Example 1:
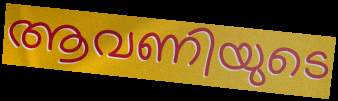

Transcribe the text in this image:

ആവണിയുടെ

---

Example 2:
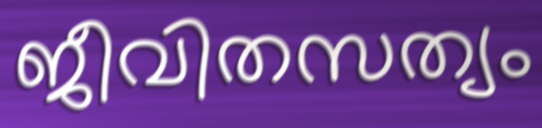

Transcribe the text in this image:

ജീവിതസത്യം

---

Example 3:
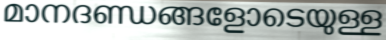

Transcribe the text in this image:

മാനദണ്ഡങ്ങളോടെയുള്ള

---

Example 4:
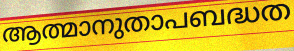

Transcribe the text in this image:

ആത്മാനുതാപബദ്ധത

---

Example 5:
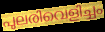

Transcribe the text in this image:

പുലരിവെളിച്ചം